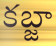
కబ్జా